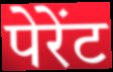
पेरेंट